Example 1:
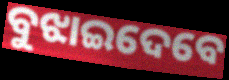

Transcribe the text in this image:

ବୁଝାଇଦେବେ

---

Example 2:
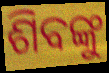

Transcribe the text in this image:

ଶିବଙ୍କୁ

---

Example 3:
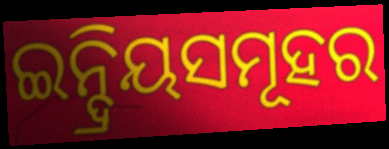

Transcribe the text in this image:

ଇନ୍ଦ୍ରିୟସମୂହର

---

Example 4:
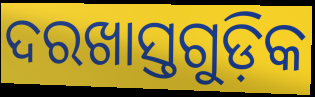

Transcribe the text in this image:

ଦରଖାସ୍ତଗୁଡ଼ିକ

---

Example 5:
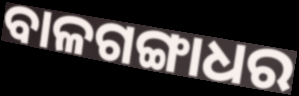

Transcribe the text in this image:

ବାଳଗଙ୍ଗାଧର